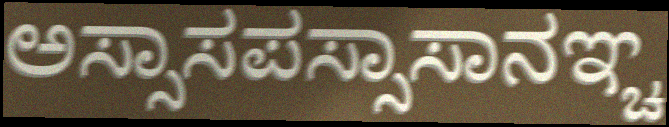
ಅಸ್ಸಾಸಪಸ್ಸಾಸಾನಞ್ಚ